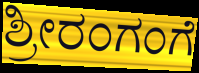
ಶ್ರೀರಂಗಂಗೆ